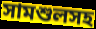
সামশুলসহ